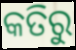
କତିରୁ